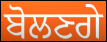
ਬੋਲਣਗੇ